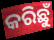
କରିଛୁଁ